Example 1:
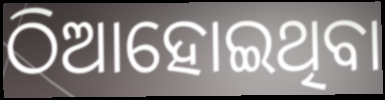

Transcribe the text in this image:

ଠିଆହୋଇଥିବା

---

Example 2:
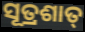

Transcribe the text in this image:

ସୂତ୍ରଶାତ୍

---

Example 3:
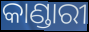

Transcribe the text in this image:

କାଣ୍ଡାରୀ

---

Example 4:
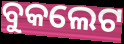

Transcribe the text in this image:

ବୁକଲେଟ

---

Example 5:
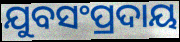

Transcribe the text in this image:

ଯୁବସଂପ୍ରଦାୟ